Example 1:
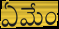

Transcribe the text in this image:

ఏమేం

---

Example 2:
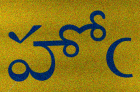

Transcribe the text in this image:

హోఁ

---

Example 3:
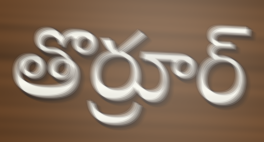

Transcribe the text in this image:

తొర్రూర్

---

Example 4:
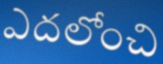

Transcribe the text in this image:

ఎదలోంచి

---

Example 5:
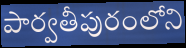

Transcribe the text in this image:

పార్వతీపురంలోని